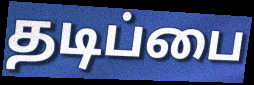
தடிப்பை